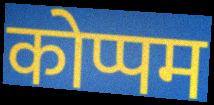
कोप्पम